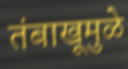
तंबाखूमुळे